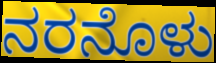
ನರನೊಳು